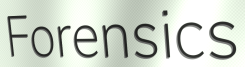
Forensics